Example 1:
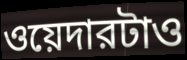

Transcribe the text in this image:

ওয়েদারটাও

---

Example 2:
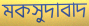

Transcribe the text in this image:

মকসুদাবাদ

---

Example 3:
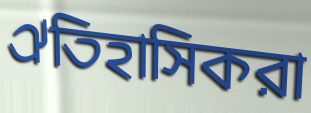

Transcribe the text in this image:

ঐতিহাসিকরা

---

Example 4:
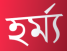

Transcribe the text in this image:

হর্ম্য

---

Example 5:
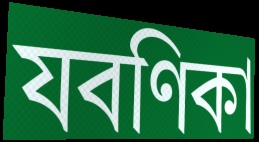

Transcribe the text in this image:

যবণিকা